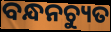
ବନ୍ଧନଚ୍ୟୁତ